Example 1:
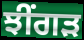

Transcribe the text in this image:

ਝੀਂਗੜ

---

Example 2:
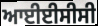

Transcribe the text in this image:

ਆਈਈਸੀਸੀ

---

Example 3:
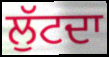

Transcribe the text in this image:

ਲੁੱਟਦਾ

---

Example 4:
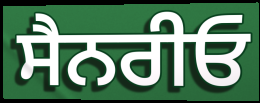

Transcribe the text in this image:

ਸੈਨਰੀਓ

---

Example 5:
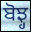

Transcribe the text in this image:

ਬੋਝ੍ਹ